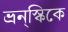
ভ্রন্‌স্কিকে